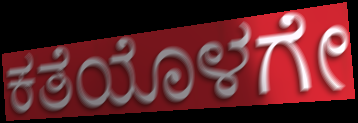
ಕತೆಯೊಳಗೇ